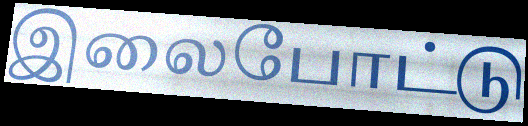
இலைபோட்டு